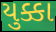
યુક્કા